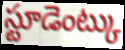
స్టూడెంట్కు